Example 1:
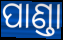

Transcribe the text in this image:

ପାଣ୍ଡା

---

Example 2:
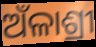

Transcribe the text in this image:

ଅଁଳାଶ୍ରୀ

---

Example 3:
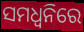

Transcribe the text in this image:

ସମଧ୍ୱନିରେ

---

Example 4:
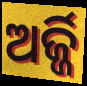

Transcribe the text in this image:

ଅର୍ଜ୍ଜି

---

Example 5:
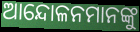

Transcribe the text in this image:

ଆନ୍ଦୋଳନମାନଙ୍କୁ